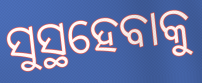
ସୁସ୍ଥହେବାକୁ